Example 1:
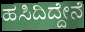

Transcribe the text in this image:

ಹಸಿದಿದ್ದೇನೆ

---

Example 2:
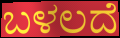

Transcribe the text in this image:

ಬಳಲದೆ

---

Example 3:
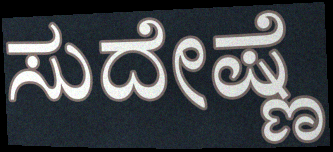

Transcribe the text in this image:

ಸುದೇಷ್ಣೆ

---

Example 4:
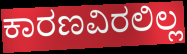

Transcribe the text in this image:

ಕಾರಣವಿರಲಿಲ್ಲ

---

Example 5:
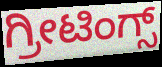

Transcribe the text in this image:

ಗ್ರೀಟಿಂಗ್ಸ್